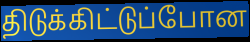
திடுக்கிட்டுப்போன